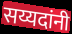
सय्यदांनी